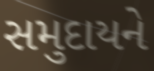
સમુદાયને